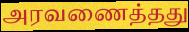
அரவணைத்தது